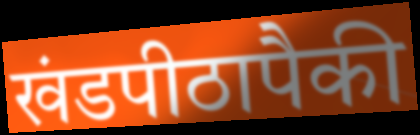
खंडपीठापैकी